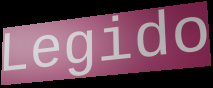
Legido